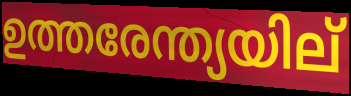
ഉത്തരേന്ത്യയില്